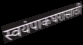
स्वयंपाकघरासाठी